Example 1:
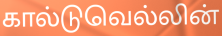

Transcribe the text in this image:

கால்டுவெல்லின்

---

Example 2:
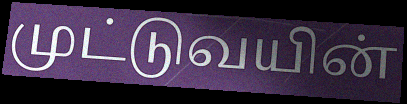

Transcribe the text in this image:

முட்டுவயின்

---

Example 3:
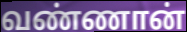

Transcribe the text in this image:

வண்ணான்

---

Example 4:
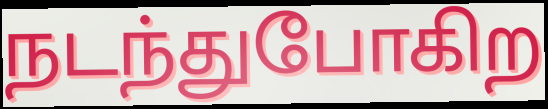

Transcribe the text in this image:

நடந்துபோகிற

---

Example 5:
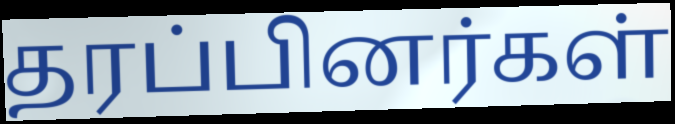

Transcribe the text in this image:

தரப்பினர்கள்